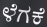
ಳೆಗಕೆ